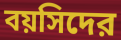
বয়সিদের